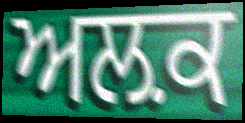
ਅਲ਼ਕ